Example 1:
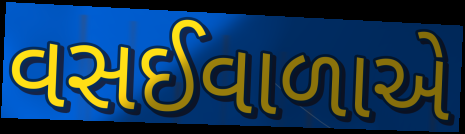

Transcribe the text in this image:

વસઈવાળાએ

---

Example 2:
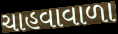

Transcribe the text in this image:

ચાહવાવાળા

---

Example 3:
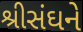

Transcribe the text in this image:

શ્રીસંઘને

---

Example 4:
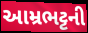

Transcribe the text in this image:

આમ્રભટ્ટની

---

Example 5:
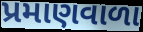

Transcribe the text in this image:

પ્રમાણવાળા